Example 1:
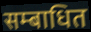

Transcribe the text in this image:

सम्बाधित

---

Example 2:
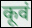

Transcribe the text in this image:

कूवं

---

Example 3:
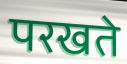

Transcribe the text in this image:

परखते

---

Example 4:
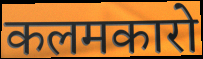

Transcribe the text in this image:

कलमकारो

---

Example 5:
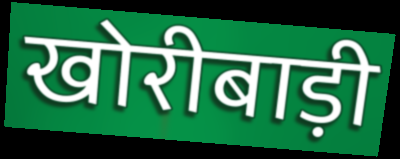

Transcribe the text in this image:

खोरीबाड़ी